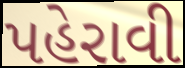
પહેરાવી